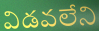
విడవలేని